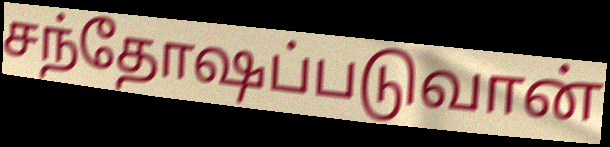
சந்தோஷப்படுவான்